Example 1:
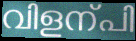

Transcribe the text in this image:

വിളന്പി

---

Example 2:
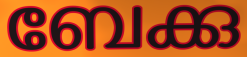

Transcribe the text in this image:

ബേക്കു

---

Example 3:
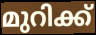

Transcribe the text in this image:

മുറിക്ക്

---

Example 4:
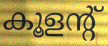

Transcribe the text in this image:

കൂളന്റ്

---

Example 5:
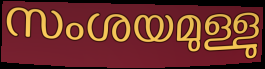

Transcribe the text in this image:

സംശയമുള്ളു